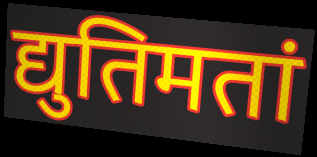
द्युतिमतां